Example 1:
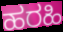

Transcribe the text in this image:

ಹರಹಿ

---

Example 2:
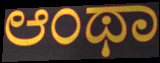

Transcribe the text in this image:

ಆಂಥಾ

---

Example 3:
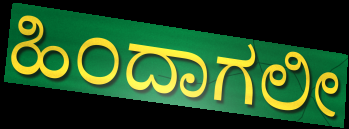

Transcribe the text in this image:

ಹಿಂದಾಗಲೀ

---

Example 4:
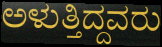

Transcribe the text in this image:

ಅಳುತ್ತಿದ್ದವರು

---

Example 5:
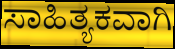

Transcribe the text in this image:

ಸಾಹಿತ್ಯಕವಾಗಿ